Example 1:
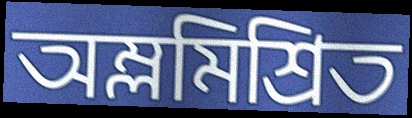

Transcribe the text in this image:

অম্লমিশ্রিত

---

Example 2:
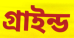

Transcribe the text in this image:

গ্রাইন্ড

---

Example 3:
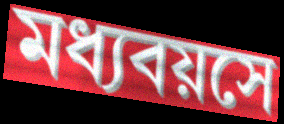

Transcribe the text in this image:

মধ্যবয়সে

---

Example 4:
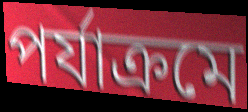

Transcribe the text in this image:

পর্যাক্রমে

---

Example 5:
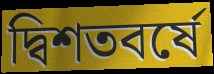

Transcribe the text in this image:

দ্বিশতবর্ষে